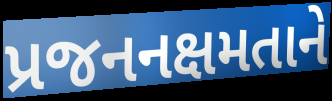
પ્રજનનક્ષમતાને